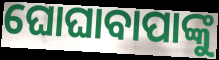
ଘୋଘାବାପାଙ୍କୁ